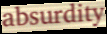
absurdity